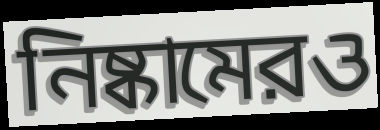
নিষ্কামেরও